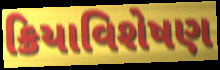
ક્રિયાવિશેષણ